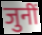
जुनीं